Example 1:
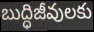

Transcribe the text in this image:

బుద్ధిజీవులకు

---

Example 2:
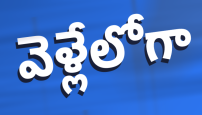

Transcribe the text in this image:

వెళ్లేలోగా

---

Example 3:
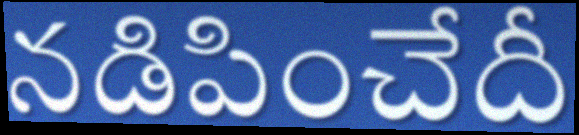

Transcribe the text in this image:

నడిపించేదీ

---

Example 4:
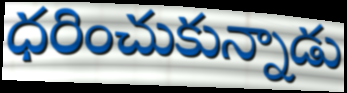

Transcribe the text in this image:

ధరించుకున్నాడు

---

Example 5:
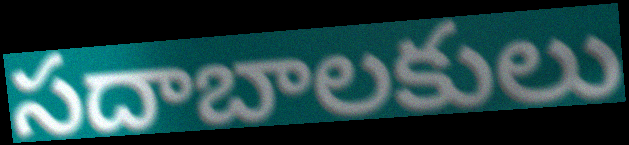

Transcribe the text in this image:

సదాబాలకులు